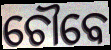
ଚୌବେ